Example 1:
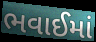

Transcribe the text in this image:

ભવાઈમાં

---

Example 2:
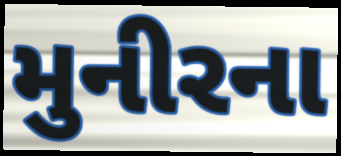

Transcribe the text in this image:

મુનીરના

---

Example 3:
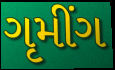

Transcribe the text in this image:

ગૃમીંગ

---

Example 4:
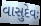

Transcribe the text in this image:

વાસુદેવઃ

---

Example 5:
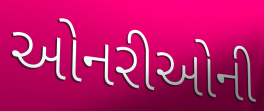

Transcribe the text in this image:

ઓનરીઓની